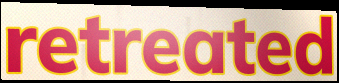
retreated